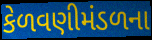
કેળવણીમંડળના